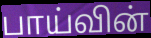
பாய்வின்